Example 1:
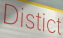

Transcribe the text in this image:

Distict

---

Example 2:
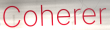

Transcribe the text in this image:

Coherer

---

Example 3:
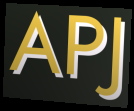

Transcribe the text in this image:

APJ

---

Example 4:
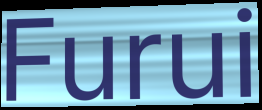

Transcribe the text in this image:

Furui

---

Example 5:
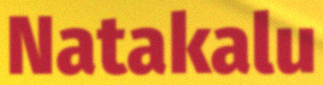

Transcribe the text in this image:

Natakalu